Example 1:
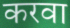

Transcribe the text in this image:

करवा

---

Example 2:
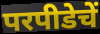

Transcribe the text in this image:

परपीडेचें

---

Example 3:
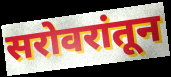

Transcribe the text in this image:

सरोवरांतून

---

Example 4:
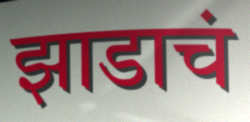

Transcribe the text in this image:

झाडाचं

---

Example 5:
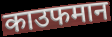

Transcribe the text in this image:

काउफमान